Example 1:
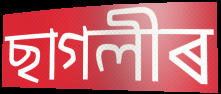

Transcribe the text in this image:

ছাগলীৰ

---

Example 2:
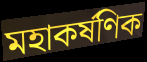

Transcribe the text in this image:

মহাকৰ্ষণিক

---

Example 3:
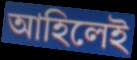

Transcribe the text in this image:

আহিলেই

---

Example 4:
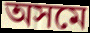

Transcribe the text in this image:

অসমে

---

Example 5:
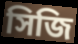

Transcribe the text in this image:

সিজি